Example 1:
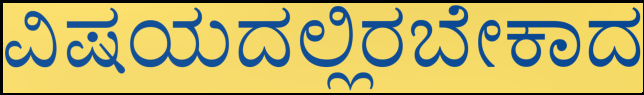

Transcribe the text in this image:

ವಿಷಯದಲ್ಲಿರಬೇಕಾದ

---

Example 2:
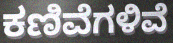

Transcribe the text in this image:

ಕಣಿವೆಗಳಿವೆ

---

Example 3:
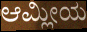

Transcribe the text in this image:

ಆಮ್ಲೀಯ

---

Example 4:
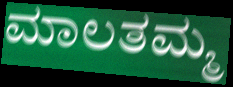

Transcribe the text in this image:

ಮಾಲತಮ್ಮ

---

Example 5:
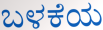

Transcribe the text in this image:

ಬಳಕೆಯ